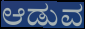
ಆಡುವ